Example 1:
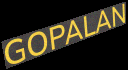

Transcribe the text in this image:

GOPALAN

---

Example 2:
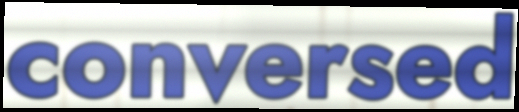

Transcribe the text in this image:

conversed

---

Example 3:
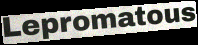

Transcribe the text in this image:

Lepromatous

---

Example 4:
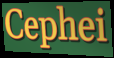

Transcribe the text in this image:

Cephei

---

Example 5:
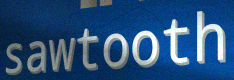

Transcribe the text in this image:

sawtooth